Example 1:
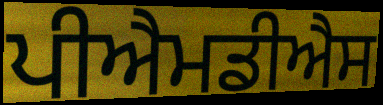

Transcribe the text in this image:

ਪੀਐਮਡੀਐਸ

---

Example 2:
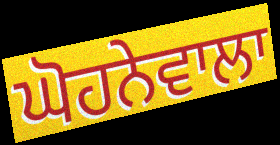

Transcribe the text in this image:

ਘੋਹਨੇਵਾਲਾ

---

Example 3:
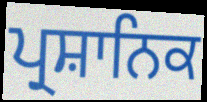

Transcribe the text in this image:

ਪ੍ਰਸ਼ਾਨਿਕ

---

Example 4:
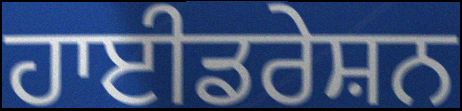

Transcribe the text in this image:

ਹਾਈਡਰੇਸ਼ਨ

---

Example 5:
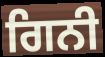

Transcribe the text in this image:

ਗਿਨੀ